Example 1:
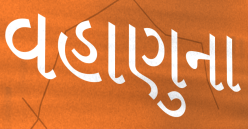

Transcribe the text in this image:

વહાણુના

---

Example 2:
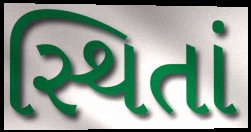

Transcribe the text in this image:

સ્થિતાં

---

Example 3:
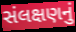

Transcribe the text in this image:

સંલક્ષણનું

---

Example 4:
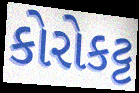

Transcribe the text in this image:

કોરોકટ્ટ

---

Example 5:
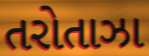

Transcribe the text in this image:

તરોતાઝા